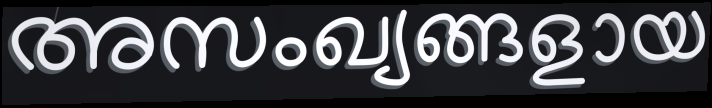
അസംഖ്യങ്ങളായ